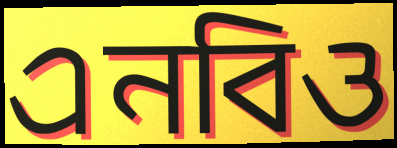
এনবিও